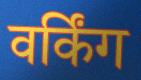
वर्किंग